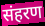
संहरण